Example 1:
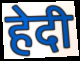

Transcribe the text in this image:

हेदी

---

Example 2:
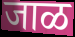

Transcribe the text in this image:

जाळ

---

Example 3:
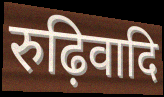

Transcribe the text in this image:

रुढ़िवादि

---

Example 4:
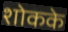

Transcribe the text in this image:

शोकके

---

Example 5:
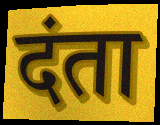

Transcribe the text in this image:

दंता